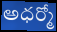
అధర్మో